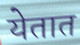
येतात